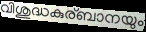
വിശുദ്ധകുര്ബാനയും